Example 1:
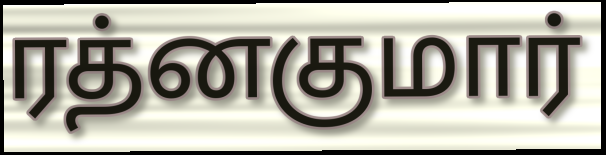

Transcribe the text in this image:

ரத்னகுமார்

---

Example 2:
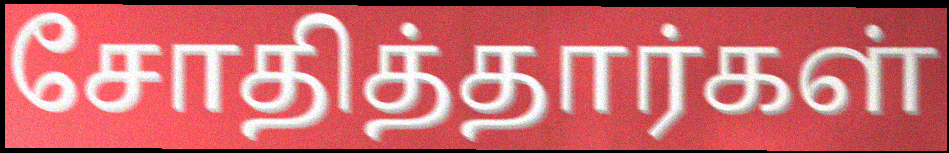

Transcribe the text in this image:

சோதித்தார்கள்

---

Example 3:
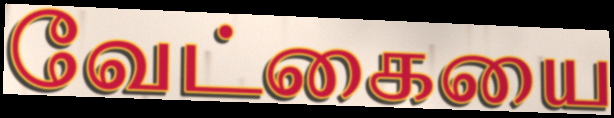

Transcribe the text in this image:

வேட்கையை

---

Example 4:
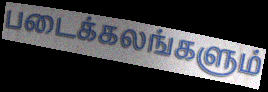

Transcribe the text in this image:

படைக்கலங்களும்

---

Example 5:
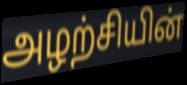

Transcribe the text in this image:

அழற்சியின்